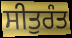
ਸੀਤੁਰੰਤ